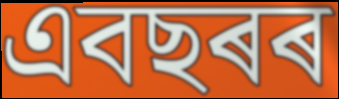
এবছৰৰ